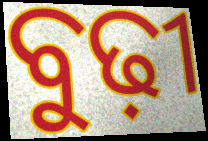
ବୁଢ଼ୀ